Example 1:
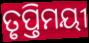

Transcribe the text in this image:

ତୃପ୍ତିମୟୀ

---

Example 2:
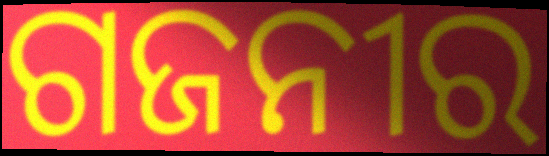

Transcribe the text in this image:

ଗଜନୀର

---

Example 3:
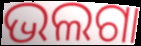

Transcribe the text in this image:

ଭଲଗା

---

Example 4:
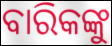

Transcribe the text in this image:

ବାରିକଙ୍କୁ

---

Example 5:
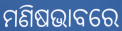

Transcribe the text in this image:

ମଣିଷଭାବରେ